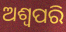
ଅଶ୍ୱପରି